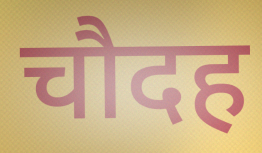
चौदह